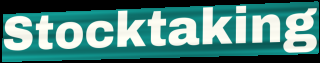
Stocktaking